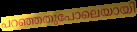
പറഞ്ഞതുപോലെയായി